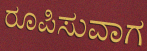
ರೂಪಿಸುವಾಗ